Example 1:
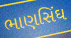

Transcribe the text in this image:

ભાણસિંઘ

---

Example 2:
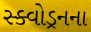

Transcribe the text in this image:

સ્ક્વોડ્રનના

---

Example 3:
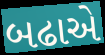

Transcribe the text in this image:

બઢાએ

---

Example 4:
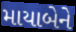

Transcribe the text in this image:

માયાબેને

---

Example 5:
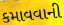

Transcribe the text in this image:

કમાવવાની